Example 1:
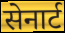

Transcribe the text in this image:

सेनार्ट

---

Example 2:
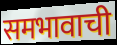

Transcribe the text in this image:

समभावाची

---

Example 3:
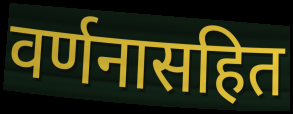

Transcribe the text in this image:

वर्णनासहित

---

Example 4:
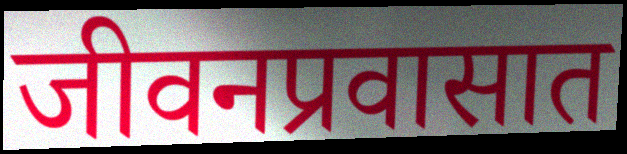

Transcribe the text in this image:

जीवनप्रवासात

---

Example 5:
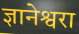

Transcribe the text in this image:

ज्ञानेश्वरा